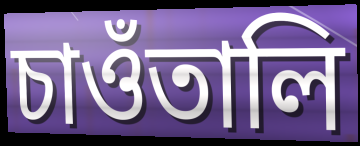
চাওঁতালি